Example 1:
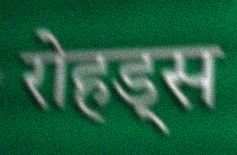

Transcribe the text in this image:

रोहड्स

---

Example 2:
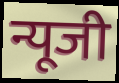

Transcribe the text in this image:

न्यूजी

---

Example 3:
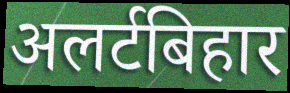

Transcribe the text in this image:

अलर्टबिहार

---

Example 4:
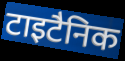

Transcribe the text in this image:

टाइटैनिक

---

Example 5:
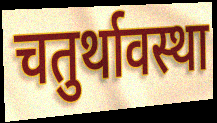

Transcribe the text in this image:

चतुर्थावस्था